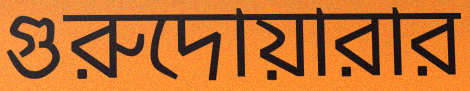
গুরুদোয়ারার